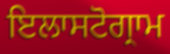
ਇਲਾਸਟੋਗ੍ਰਾਮ